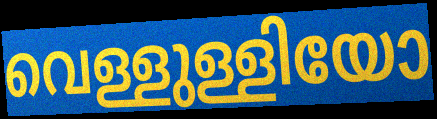
വെള്ളുള്ളിയോ